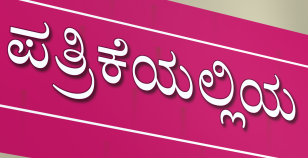
ಪತ್ರಿಕೆಯಲ್ಲಿಯ